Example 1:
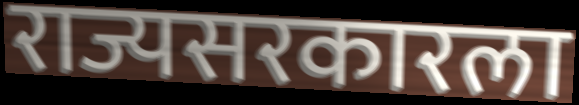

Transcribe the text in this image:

राज्यसरकारला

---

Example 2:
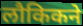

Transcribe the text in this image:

लौकिकने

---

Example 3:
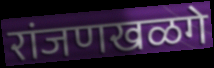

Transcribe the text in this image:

रांजणखळगे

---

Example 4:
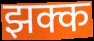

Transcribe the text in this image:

झक्क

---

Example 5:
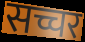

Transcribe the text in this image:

सच्चर